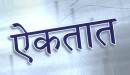
ऐकतात